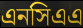
এনসিএএ